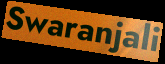
Swaranjali